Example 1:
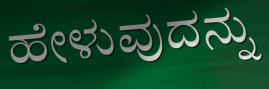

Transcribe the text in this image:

ಹೇಳುವುದನ್ನು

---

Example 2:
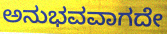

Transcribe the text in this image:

ಅನುಭವವಾಗದೇ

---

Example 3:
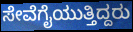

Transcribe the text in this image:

ಸೇವೆಗೈಯುತ್ತಿದ್ದರು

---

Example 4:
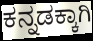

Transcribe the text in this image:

ಕನ್ನಡಕ್ಕಾಗಿ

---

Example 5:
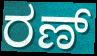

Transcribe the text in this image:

ರಣ್